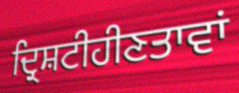
ਦ੍ਰਿਸ਼ਟੀਹੀਣਤਾਵਾਂ